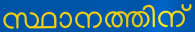
സ്ഥാനത്തിന്